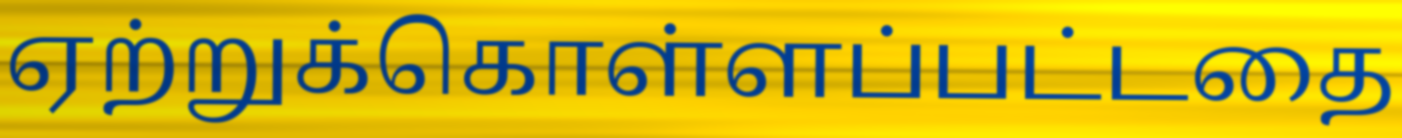
ஏற்றுக்கொள்ளப்பட்டதை